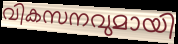
വികസനവുമായി